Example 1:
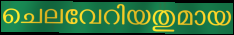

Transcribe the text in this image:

ചെലവേറിയതുമായ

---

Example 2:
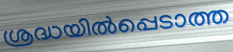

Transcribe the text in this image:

ശ്രദ്ധയിൽപ്പെടാത്ത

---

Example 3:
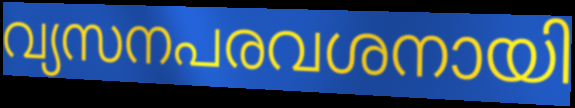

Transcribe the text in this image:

വ്യസനപരവശനായി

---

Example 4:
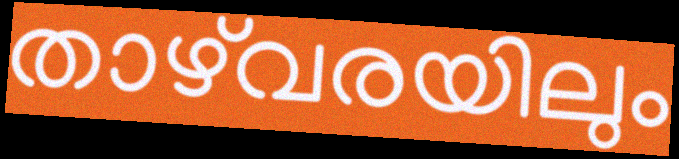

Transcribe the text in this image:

താഴ്‌വരയിലും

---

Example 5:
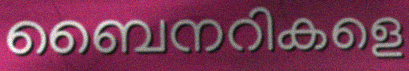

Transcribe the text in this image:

ബൈനറികളെ